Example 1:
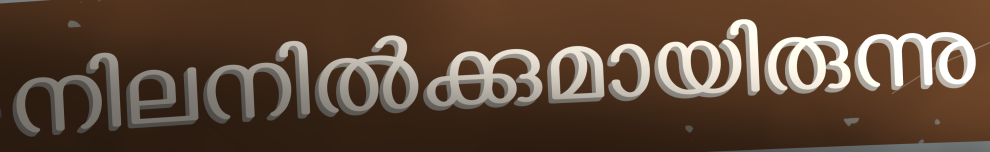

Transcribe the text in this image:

നിലനിൽക്കുമായിരുന്നു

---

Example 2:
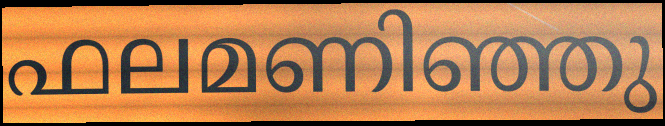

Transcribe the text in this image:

ഫലമണിഞ്ഞു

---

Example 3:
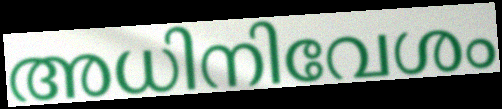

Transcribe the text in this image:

അധിനിവേശം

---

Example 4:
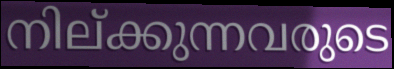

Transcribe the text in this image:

നില്ക്കുന്നവരുടെ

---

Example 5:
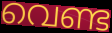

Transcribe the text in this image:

വെണ്ട